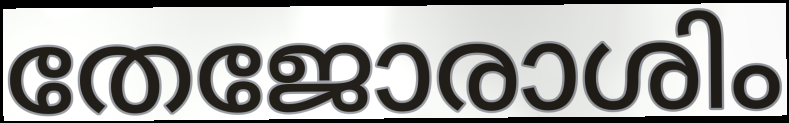
തേജോരാശിം